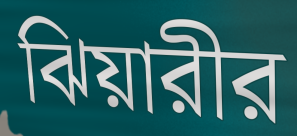
ঝিয়ারীর